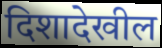
दिशादेखील